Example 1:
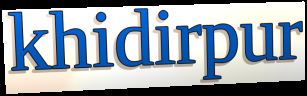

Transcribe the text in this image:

khidirpur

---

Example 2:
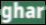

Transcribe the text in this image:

ghar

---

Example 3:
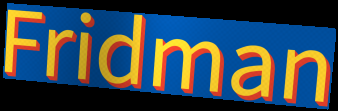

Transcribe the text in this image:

Fridman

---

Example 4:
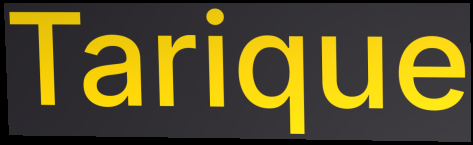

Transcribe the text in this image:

Tarique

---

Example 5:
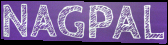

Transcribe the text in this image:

NAGPAL